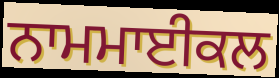
ਨਾਮਮਾਈਕਲ